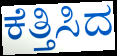
ಕೆತ್ತಿಸಿದ